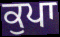
ਕੁਪਾ